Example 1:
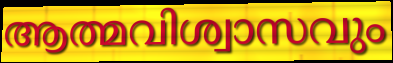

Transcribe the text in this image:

ആത്മവിശ്വാസവും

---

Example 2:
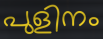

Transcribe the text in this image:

പുളിനം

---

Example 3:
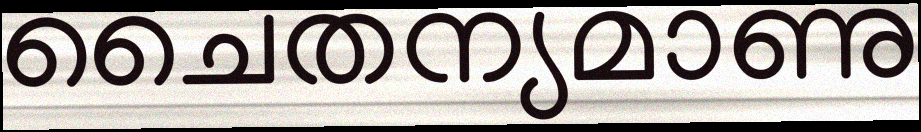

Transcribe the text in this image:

ചൈതന്യമാണു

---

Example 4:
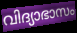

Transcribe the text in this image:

വിദ്യാഭാസം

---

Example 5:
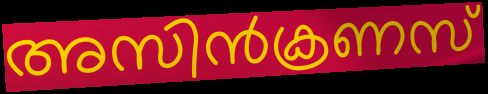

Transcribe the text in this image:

അസിൻക്രണസ്